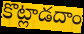
కొట్లాడదాం